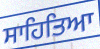
ਸਾਹਿਤਿਆ